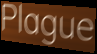
Plague